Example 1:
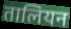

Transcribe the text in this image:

तालियन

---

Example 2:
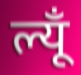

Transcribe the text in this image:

ल्यूँ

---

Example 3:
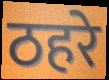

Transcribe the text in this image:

ठहरे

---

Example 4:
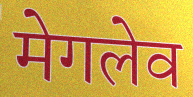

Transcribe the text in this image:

मेगलेव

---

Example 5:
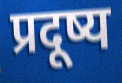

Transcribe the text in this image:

प्रदूष्य